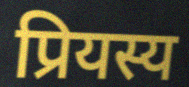
प्रियस्य